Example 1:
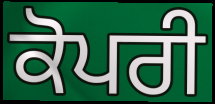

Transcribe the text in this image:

ਕੋਪਰੀ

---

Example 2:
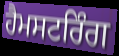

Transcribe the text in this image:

ਹੈਮਸਟਰਿੰਗ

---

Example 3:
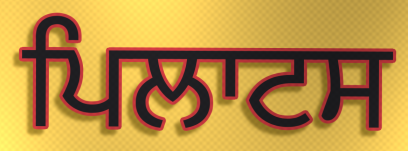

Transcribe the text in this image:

ਪਿਲਾਟਸ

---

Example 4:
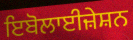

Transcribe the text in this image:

ਇਬੋਲਾਈਜ਼ੇਸ਼ਨ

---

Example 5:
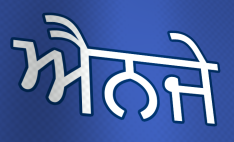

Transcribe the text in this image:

ਐਨਜੇ